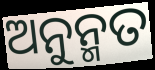
ଅନୁନ୍ମତ